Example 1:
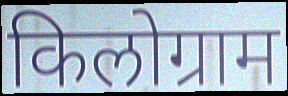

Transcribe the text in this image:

किलोग्राम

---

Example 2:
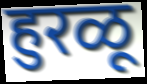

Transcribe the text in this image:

हुरळू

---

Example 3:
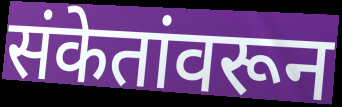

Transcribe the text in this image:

संकेतांवरून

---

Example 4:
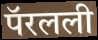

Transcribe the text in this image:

पॅरलली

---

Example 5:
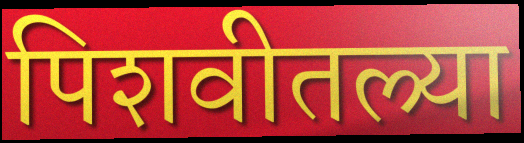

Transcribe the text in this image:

पिशवीतल्या